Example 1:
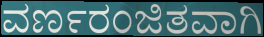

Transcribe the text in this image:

ವರ್ಣರಂಜಿತವಾಗಿ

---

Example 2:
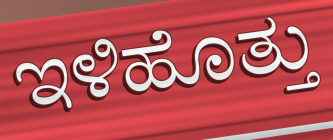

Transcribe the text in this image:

ಇಳಿಹೊತ್ತು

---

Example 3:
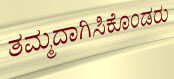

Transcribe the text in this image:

ತಮ್ಮದಾಗಿಸಿಕೊಂಡರು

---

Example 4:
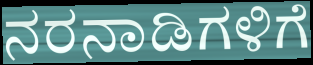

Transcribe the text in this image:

ನರನಾಡಿಗಳಿಗೆ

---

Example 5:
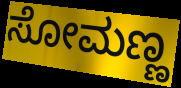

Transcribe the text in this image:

ಸೋಮಣ್ಣ